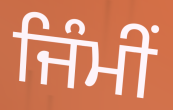
ਜਿੰਮੀਂ